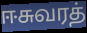
ஈசுவரத்